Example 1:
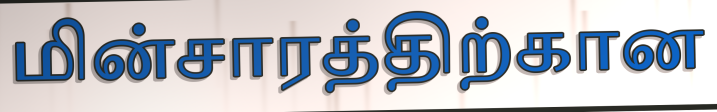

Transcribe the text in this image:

மின்சாரத்திற்கான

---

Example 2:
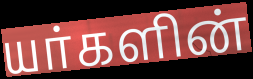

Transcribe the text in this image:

யர்களின்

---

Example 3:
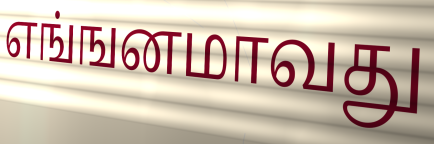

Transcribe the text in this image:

எங்ஙனமாவது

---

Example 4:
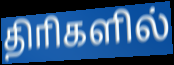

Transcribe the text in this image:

திரிகளில்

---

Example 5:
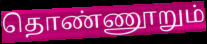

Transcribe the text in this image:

தொண்ணூறும்